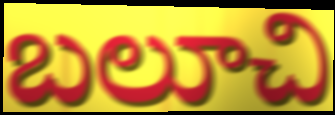
బలూచి